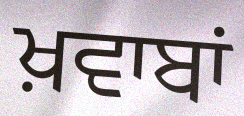
ਖ਼ਵਾਬਾਂ